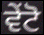
ਵੇਂਟੋ